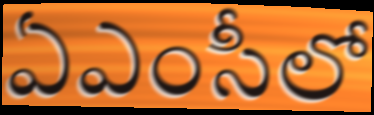
ఏఎంసీలో